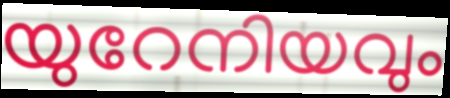
യുറേനിയവും